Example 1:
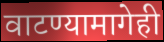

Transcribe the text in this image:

वाटण्यामागेही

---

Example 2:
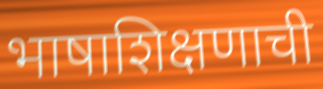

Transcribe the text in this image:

भाषाशिक्षणाची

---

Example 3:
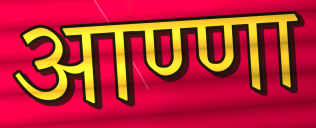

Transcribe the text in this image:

आण्णा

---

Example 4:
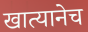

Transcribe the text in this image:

खात्यानेच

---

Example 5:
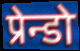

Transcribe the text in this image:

प्रेन्डो